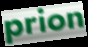
prion